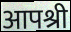
आपश्री